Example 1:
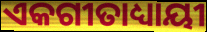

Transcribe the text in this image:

ଏକଗୀତାଧ୍ୟାୟୀ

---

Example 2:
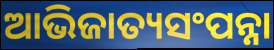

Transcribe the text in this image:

ଆଭିଜାତ୍ୟସଂପନ୍ନା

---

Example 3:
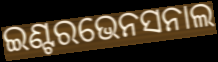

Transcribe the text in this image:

ଇଣ୍ଟରଭେନସନାଲ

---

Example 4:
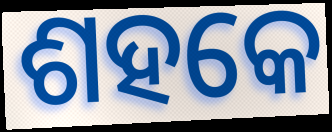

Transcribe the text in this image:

ଶହକେ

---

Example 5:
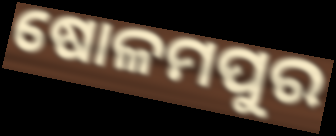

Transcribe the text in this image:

ଷୋଳମପୁର